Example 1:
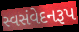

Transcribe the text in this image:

સ્વસંવેદનરૂપ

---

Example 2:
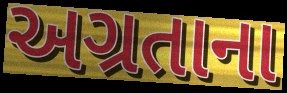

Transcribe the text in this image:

અગ્રતાના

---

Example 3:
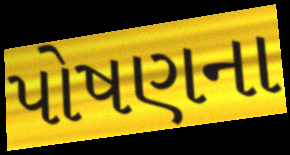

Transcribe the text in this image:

પોષણના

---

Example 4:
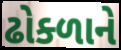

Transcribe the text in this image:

ઢોક્ળાને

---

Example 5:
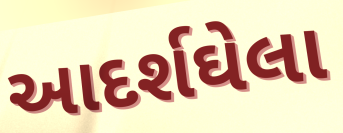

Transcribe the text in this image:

આદર્શઘેલા